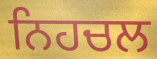
ਨਿਹਚਲ